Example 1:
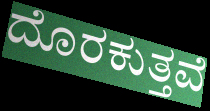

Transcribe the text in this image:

ದೊರಕುತ್ತವೆ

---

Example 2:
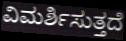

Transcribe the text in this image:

ವಿಮರ್ಶಿಸುತ್ತದೆ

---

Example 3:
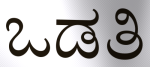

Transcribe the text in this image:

ಒಡತಿ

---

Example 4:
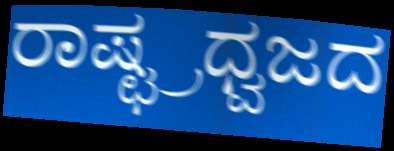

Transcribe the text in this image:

ರಾಷ್ಟ್ರಧ್ವಜದ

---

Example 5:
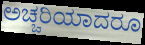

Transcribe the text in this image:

ಅಚ್ಚರಿಯಾದರೂ